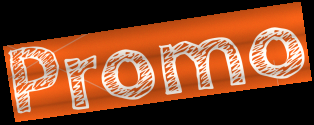
Promo